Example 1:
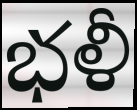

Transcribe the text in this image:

భళీ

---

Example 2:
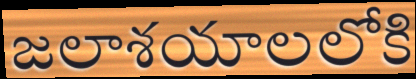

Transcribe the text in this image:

జలాశయాలలోకి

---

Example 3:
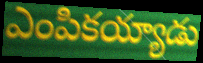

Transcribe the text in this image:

ఎంపికయ్యాడు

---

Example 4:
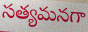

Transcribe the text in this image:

సత్యమనగా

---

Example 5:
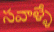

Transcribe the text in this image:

సవాళ్ళే